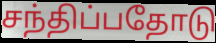
சந்திப்பதோடு